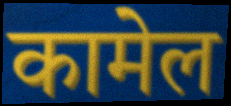
कामेल